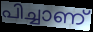
പിച്ചാണ്